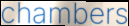
chambers